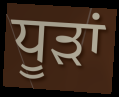
ਧੂਡ਼ਾਂ